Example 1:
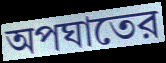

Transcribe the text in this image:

অপঘাতের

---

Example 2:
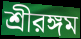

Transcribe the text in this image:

শ্রীরঙ্গম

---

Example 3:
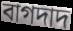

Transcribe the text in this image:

বাগদাদ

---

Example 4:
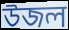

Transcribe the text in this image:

উজল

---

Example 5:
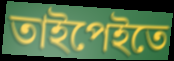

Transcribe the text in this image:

তাইপেইতে